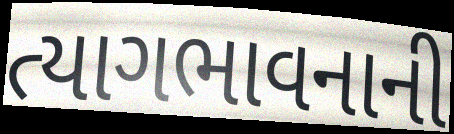
ત્યાગભાવનાની